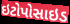
ઇટોપોસાઇડ